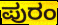
ಪುರಂ